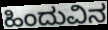
ಹಿಂದುವಿನ